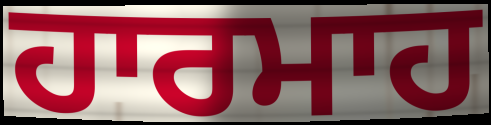
ਹਾਰਮਾਹ